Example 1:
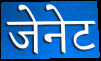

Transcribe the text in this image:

जेनेट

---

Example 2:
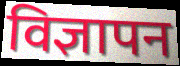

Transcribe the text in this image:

विज्ञापन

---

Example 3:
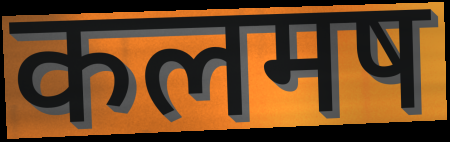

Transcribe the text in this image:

कलमष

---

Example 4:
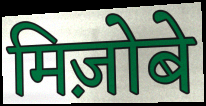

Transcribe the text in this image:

मिज़ोबे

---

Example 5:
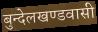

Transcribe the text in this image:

बुन्देलखण्डवासी